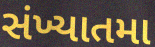
સંખ્યાતમા